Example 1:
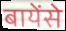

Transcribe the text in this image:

बायेंसे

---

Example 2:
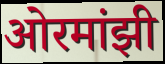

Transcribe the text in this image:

ओरमांझी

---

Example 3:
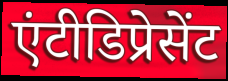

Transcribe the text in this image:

एंटीडिप्रेसेंट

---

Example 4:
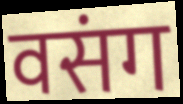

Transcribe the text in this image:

वसंग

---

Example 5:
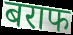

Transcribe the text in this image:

बराफ